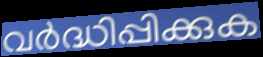
വർദ്ധിപ്പിക്കുക